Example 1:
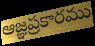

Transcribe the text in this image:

ఆజ్ఞప్రకారము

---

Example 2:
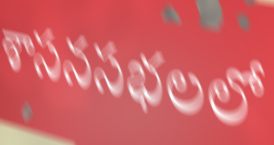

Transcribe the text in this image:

శాసనసభలలో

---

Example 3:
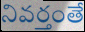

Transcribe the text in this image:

నివర్తంతే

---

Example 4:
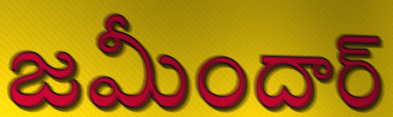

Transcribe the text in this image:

జమీందార్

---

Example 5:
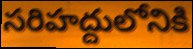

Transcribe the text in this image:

సరిహద్దులోనికి